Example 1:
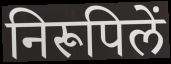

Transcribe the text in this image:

निरूपिलें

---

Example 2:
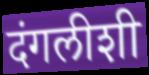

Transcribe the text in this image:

दंगलीशी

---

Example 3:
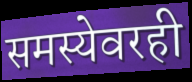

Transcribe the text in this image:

समस्येवरही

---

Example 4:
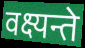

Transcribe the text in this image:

वक्ष्यन्ते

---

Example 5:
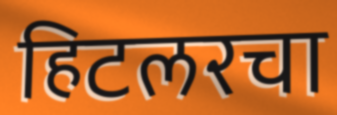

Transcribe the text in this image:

हिटलरचा